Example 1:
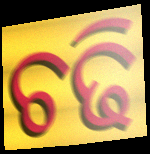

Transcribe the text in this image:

ଚଢି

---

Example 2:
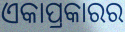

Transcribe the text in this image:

ଏକାପ୍ରକାରର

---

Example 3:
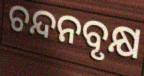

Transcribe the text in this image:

ଚନ୍ଦନବୃକ୍ଷ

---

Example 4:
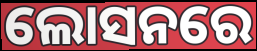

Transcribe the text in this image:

ଲୋସନରେ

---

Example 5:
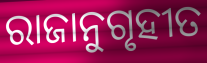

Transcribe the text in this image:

ରାଜାନୁଗୃହୀତ